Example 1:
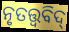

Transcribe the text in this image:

ନୃତତ୍ତ୍ଵବିଦ୍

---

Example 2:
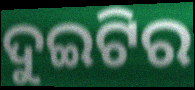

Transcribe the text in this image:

ଦୁଇଟିର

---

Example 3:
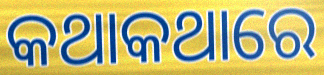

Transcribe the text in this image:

କଥାକଥାରେ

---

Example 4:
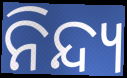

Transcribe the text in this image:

ନିନ୍ଦ୍ୟ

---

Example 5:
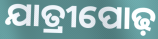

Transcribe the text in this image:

ଯାତ୍ରୀପୋଢ଼